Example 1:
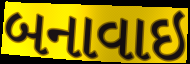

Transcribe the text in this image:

બનાવાઇ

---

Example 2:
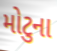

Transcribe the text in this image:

મોટુના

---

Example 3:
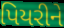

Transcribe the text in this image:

પિયરીને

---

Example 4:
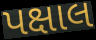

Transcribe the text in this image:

પક્ષાલ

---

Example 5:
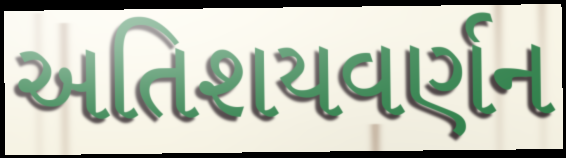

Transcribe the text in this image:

અતિશયવર્ણન